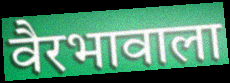
वैरभावाला